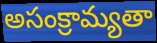
అసంక్రామ్యతా